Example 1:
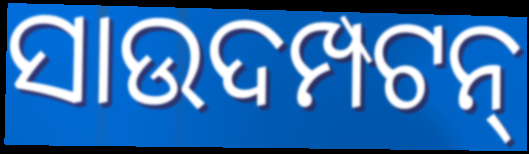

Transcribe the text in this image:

ସାଉଦମ୍ପଟନ୍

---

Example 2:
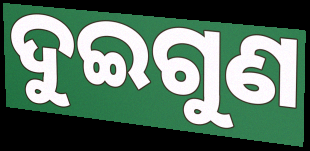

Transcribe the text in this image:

ଦୁଇଗୁଣ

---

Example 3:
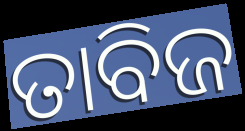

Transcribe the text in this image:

ତାବିଜ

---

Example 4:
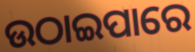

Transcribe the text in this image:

ଉଠାଇପାରେ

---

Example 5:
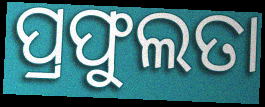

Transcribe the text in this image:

ପ୍ରଫୁଲତା